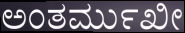
ಅಂತರ್ಮುಖೀ